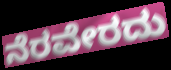
ನೆರವೇರದು